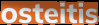
osteitis